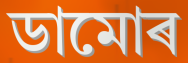
ডামোৰ